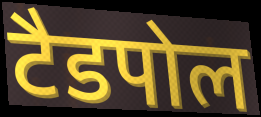
टैडपोल